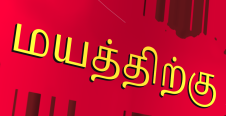
மயத்திற்கு